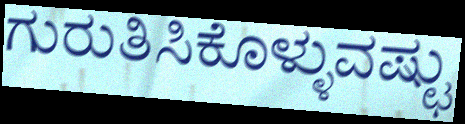
ಗುರುತಿಸಿಕೊಳ್ಳುವಷ್ಟು